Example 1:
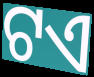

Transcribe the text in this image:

ଟଏ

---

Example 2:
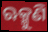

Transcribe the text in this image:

ଋକ୍ମୁଣି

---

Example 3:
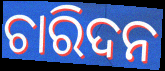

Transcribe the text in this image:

ଚାରିଦନ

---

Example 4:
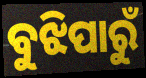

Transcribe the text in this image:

ବୁଝିପାରୁଁ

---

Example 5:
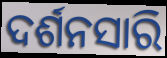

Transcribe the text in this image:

ଦର୍ଶନସାରି